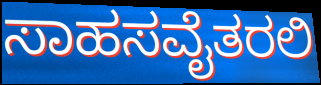
ಸಾಹಸವೈತರಲಿ